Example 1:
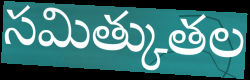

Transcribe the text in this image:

సమిత్కుతల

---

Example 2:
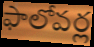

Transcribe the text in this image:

ఫాలోవర్ల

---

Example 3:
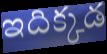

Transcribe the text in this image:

ఇదిక్కడ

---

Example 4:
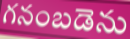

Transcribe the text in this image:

గనంబడెను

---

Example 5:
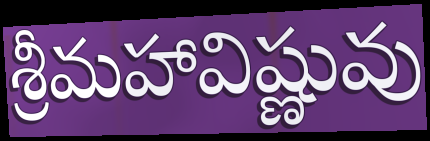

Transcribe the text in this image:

శ్రీమహావిష్ణువు